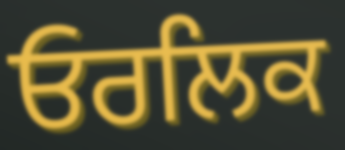
ਓਰਲਿਕ